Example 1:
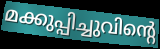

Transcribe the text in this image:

മക്കുപ്പിച്ചുവിന്റെ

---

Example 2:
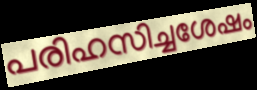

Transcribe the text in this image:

പരിഹസിച്ചശേഷം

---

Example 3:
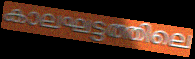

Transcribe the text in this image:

കാലഘട്ടത്തിലെ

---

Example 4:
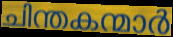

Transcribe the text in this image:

ചിന്തകന്മാർ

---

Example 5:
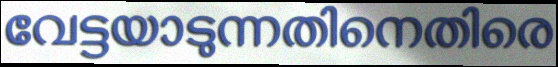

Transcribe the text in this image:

വേട്ടയാടുന്നതിനെതിരെ